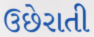
ઉછેરાતી